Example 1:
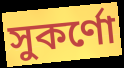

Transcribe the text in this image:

সুকৰ্ণো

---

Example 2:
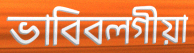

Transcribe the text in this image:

ভাবিবলগীয়া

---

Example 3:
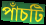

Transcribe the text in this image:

পাঁচটি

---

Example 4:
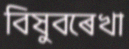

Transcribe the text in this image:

বিষুবৰেখা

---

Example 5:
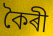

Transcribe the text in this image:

কৈৰী